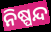
ନିଷ୍ପନ୍ଦ